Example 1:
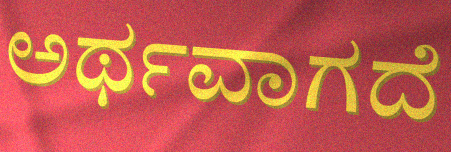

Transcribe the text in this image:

ಅರ್ಥವಾಗದೆ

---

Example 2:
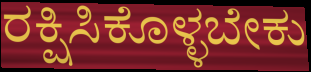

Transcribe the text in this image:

ರಕ್ಷಿಸಿಕೊಳ್ಳಬೇಕು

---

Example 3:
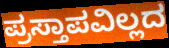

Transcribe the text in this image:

ಪ್ರಸ್ತಾಪವಿಲ್ಲದ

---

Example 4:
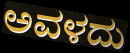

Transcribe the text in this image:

ಅವಳದು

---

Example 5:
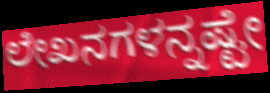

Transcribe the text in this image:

ಲೇಖನಗಳನ್ನಷ್ಟೇ